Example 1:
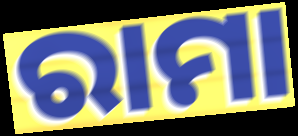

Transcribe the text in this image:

ରାମା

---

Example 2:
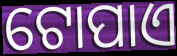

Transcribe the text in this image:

ଟୋପାଏ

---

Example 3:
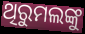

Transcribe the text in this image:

ଥିରୁମଲଙ୍କୁ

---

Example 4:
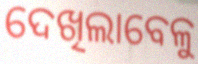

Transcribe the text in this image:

ଦେଖିଲାବେଳୁ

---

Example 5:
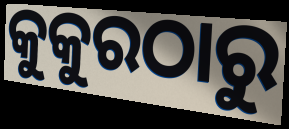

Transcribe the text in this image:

କୁକୁରଠାରୁ